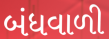
બંધવાળી